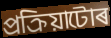
প্ৰক্ৰিয়াটোৰ